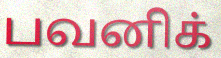
பவனிக்